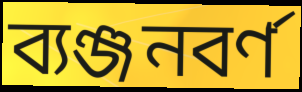
ব্যঞ্জনবর্ণ